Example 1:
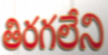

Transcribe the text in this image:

తిరగలేని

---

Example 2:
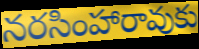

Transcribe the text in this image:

నరసింహారావుకు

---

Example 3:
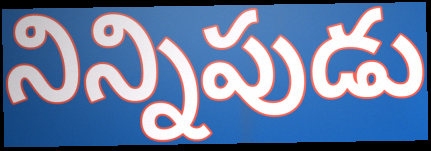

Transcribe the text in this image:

నిన్నిపుడు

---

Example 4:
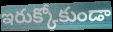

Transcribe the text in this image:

ఇరుక్కోకుండా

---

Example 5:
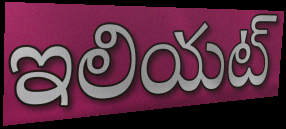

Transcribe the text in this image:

ఇలియట్